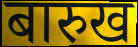
बारुख